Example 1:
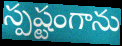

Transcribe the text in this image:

స్పష్టంగాను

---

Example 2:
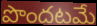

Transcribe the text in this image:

పొందటమే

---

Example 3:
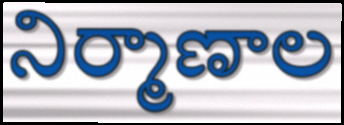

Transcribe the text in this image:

నిర్మాణాల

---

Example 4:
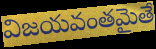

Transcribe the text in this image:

విజయవంతమైతే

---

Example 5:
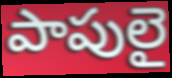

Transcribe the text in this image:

పాపులై